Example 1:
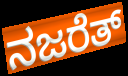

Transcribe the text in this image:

ನಜರೆತ್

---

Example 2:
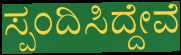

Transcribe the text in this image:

ಸ್ಪಂದಿಸಿದ್ದೇವೆ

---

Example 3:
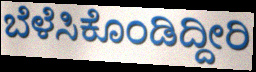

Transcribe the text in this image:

ಬೆಳೆಸಿಕೊಂಡಿದ್ದೀರಿ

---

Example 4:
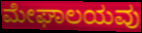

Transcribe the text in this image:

ಮೇಘಾಲಯವು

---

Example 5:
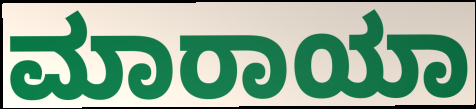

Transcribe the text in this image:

ಮಾರಾಯಾ